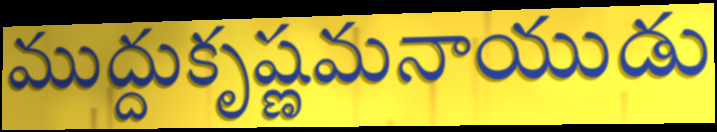
ముద్దుకృష్ణమనాయుడు